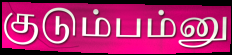
குடும்பம்னு